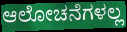
ಆಲೋಚನೆಗಳಲ್ಲ